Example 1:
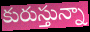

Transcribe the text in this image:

కురుస్తున్నా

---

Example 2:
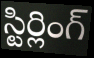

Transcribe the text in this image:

స్టిర్లింగ్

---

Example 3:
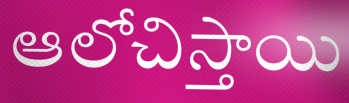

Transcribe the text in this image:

ఆలోచిస్తాయి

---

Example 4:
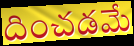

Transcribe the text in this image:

దించడమే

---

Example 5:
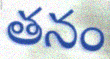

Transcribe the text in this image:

తనం